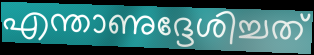
എന്താണുദ്ദേശിച്ചത്